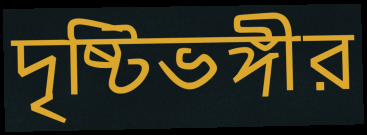
দৃষ্টিভঙ্গীর